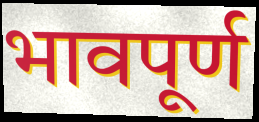
भावपूर्ण